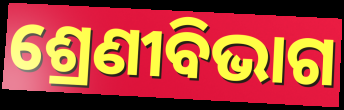
ଶ୍ରେଣୀବିଭାଗ